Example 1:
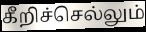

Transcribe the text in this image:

கீறிச்செல்லும்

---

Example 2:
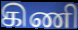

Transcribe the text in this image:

கிணி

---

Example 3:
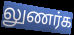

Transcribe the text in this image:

லுணர்க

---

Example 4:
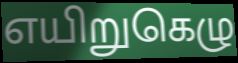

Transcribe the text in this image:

எயிறுகெழு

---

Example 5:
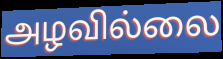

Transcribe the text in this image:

அழவில்லை